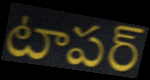
టాపర్